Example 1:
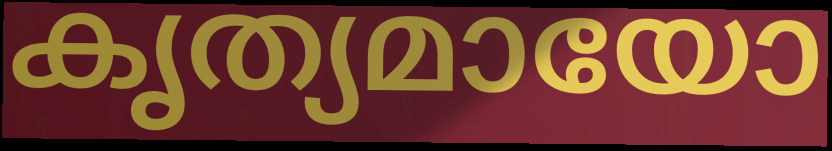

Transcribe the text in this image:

കൃത്യമായോ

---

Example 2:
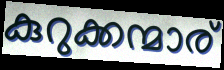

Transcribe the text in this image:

കുറുക്കന്മാര്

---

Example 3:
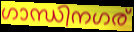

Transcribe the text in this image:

ഗാന്ധിനഗര്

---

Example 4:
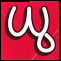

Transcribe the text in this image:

ധു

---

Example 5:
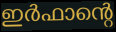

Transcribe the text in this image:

ഇർഫാന്റെ